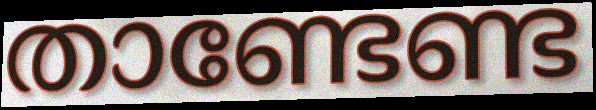
താണ്ടേണ്ട